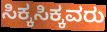
ಸಿಕ್ಕಸಿಕ್ಕವರು